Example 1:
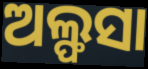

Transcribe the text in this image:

ଅଲ୍ଫସା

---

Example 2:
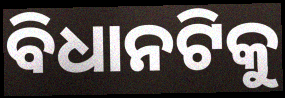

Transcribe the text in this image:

ବିଧାନଟିକୁ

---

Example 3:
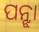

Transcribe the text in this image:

ପନ୍ଝା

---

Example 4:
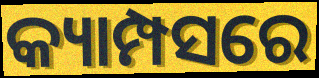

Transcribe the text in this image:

କ୍ୟାମ୍ପସରେ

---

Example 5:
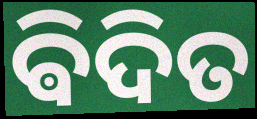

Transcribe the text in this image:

ଵିଦିତ